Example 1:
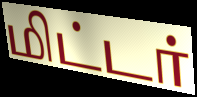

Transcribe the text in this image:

மிட்டர்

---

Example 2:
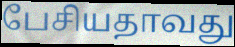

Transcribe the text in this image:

பேசியதாவது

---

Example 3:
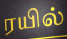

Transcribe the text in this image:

ரயில்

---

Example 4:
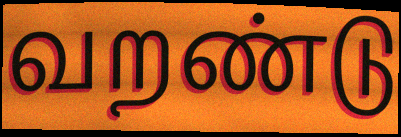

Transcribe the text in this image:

வறண்டு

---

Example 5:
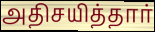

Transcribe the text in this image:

அதிசயித்தார்